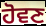
ਹੋਵਣ